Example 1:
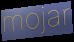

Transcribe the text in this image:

mojar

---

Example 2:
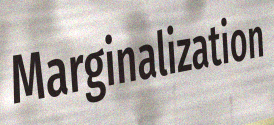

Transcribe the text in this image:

Marginalization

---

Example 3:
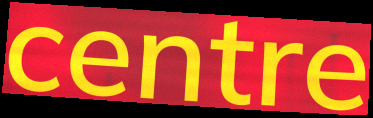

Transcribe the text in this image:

centre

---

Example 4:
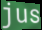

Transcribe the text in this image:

jus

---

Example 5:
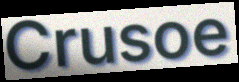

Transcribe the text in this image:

Crusoe